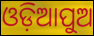
ଓଡ଼ିଆପୁଅ